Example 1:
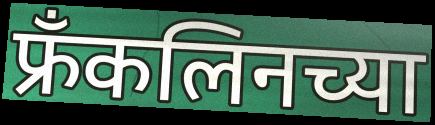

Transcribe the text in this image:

फ्रँकलिनच्या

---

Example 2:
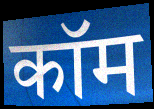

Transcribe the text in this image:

कॉम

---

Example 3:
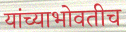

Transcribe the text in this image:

यांच्याभोवतीच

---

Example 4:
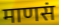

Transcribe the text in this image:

माणसं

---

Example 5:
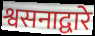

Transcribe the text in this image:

श्वसनाद्वारे